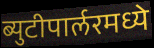
ब्युटीपार्लरमध्ये